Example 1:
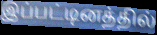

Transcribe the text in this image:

இப்பட்டினத்தில்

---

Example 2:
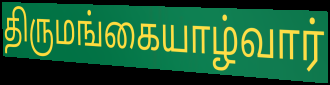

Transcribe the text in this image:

திருமங்கையாழ்வார்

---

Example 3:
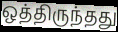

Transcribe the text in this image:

ஒத்திருந்தது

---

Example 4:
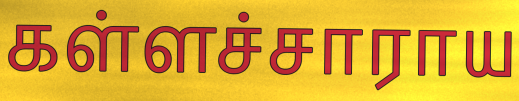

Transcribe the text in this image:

கள்ளச்சாராய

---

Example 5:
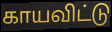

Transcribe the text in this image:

காயவிட்டு